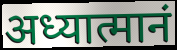
अध्यात्मानं